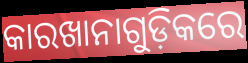
କାରଖାନାଗୁଡ଼ିକରେ